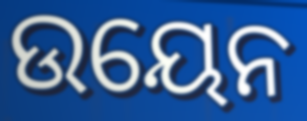
ଉୟେନ